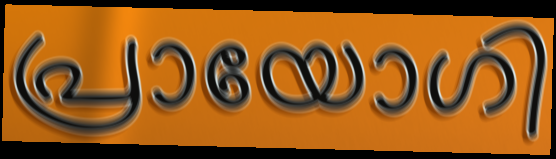
പ്രായോഗി